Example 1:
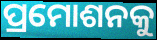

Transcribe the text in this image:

ପ୍ରମୋଶନକୁ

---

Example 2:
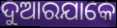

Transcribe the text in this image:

ଦୁଆରଯାକେ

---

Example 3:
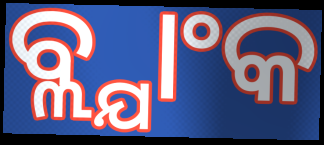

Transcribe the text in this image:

ବ୍ଲ୍ଯାଂକ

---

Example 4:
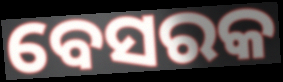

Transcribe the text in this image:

ବେସରକ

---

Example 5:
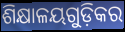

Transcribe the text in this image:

ଶିକ୍ଷାଳୟଗୁଡ଼ିକର